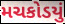
મચકોડયું